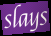
slays